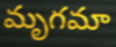
మృగమా